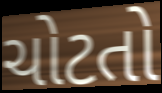
ચોટતો